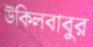
উকিলবাবুর